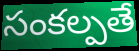
సంకల్పతే